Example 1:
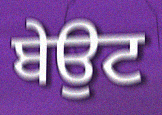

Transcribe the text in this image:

ਬੇਉਟ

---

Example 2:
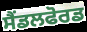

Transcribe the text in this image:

ਸੈਂਡਲਫੋਰਡ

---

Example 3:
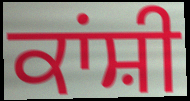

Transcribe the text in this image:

ਕਾਂਸ਼ੀ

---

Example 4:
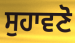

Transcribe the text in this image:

ਸੁਹਾਵਣੋ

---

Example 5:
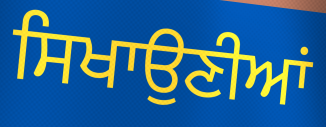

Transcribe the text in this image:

ਸਿਖਾਉਣੀਆਂ